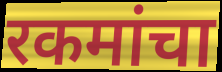
रकमांचा